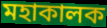
মহাকালক